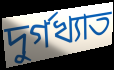
দুর্গখ্যাত